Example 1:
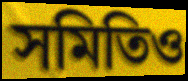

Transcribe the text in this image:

সমিতিও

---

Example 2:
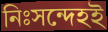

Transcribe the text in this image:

নিঃসন্দেহই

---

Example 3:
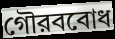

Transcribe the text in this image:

গৌরববোধ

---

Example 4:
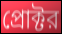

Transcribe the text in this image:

প্রোক্টর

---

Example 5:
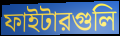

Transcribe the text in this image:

ফাইটারগুলি